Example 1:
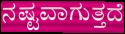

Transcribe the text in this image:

ನಷ್ಟವಾಗುತ್ತದೆ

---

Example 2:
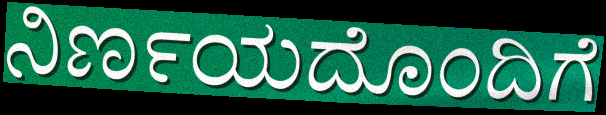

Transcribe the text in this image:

ನಿರ್ಣಯದೊಂದಿಗೆ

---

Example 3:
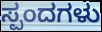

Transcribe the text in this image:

ಸ್ಪಂದಗಳು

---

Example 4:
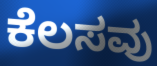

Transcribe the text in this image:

ಕೆಲಸವು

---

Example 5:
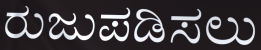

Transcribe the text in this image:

ರುಜುಪಡಿಸಲು